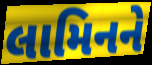
લામિનને